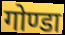
गोण्डा